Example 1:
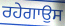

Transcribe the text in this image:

ਰਹੇਗਾਉਸ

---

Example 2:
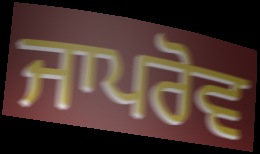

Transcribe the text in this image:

ਜਾਪਰੋਵ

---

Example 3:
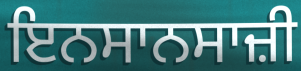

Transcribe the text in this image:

ਇਨਸਾਨਸਾਜ਼ੀ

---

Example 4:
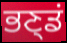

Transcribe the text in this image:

ਭਣ੍ਡਂ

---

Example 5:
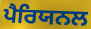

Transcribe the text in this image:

ਪੈਰਿਯਨਲ